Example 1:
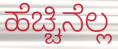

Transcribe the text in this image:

ಹೆಚ್ಚಿನೆಲ್ಲ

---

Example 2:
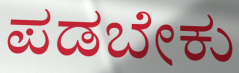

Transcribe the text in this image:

ಪಡಬೇಕು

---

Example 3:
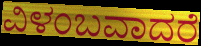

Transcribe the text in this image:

ವಿಳಂಬವಾದರೆ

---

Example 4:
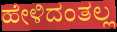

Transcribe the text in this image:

ಹೇಳಿದಂತಲ್ಲ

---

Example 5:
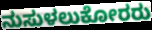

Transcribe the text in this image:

ನುಸುಳಲುಕೋರರು